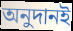
অনুদানই